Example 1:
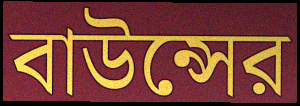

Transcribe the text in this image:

বাউন্সের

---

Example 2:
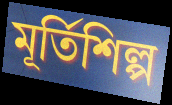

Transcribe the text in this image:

মূর্তিশিল্প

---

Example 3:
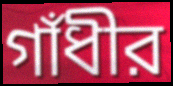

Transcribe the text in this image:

গাঁধীর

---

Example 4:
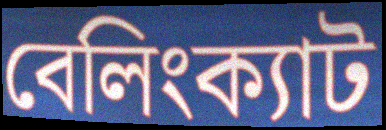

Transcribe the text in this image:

বেলিংক্যাট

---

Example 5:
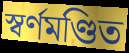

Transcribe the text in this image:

স্বর্ণমণ্ডিত